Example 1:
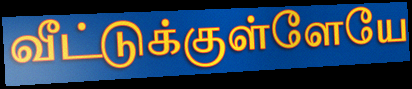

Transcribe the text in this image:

வீட்டுக்குள்ளேயே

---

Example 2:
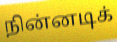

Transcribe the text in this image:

நின்னடிக்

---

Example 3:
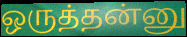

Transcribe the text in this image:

ஒருத்தன்னு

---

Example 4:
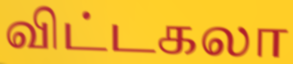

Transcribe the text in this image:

விட்டகலா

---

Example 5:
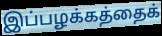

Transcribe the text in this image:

இப்பழக்கத்தைக்